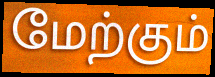
மேற்கும்